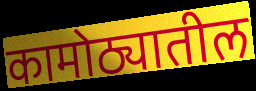
कामोठ्यातील